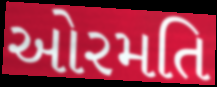
ઓરમતિ